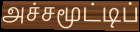
அச்சமூட்டிப்